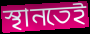
স্থানতেই